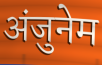
अंजुनेम